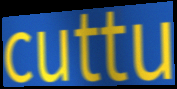
cuttu